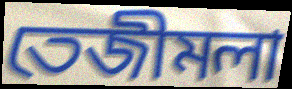
তেজীমলা